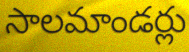
సాలమాండర్లు